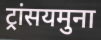
ट्रांसयमुना